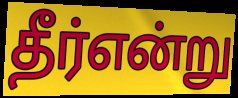
தீர்என்று